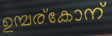
ഉമ്പര്കോന്